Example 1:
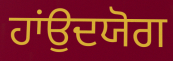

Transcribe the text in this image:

ਹਾਂਉਦਯੋਗ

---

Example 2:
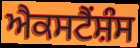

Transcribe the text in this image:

ਐਕਸਟੈਂਸ਼ੰਸ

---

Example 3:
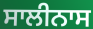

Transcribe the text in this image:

ਸਾਲੀਨਾਸ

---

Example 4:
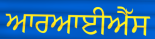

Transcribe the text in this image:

ਆਰਆਈਐੱਸ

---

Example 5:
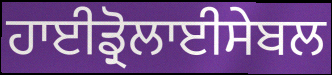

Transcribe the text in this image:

ਹਾਈਡ੍ਰੋਲਾਈਸੇਬਲ